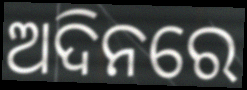
ଅଦିନରେ